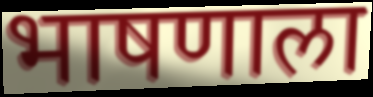
भाषणाला